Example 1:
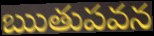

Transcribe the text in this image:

ఋతుపవన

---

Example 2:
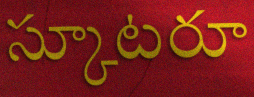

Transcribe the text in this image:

స్కూటరూ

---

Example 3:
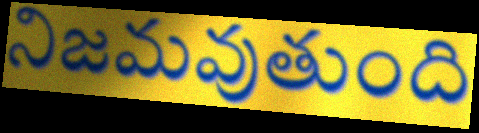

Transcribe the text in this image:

నిజమవుతుంది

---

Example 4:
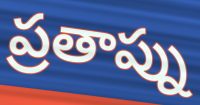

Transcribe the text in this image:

ప్రతాప్ను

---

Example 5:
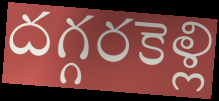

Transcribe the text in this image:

దగ్గరకెళ్లి